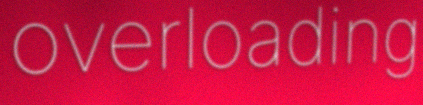
overloading